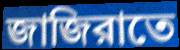
জাজিরাতে